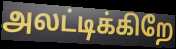
அலட்டிக்கிறே